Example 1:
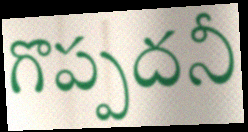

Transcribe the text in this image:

గొప్పదనీ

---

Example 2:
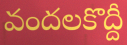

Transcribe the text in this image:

వందలకొద్దీ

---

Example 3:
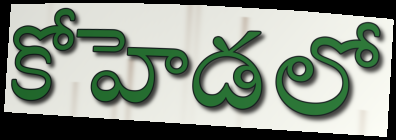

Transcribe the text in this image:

కోహెడలో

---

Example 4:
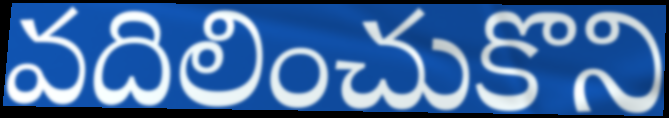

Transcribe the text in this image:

వదిలించుకొని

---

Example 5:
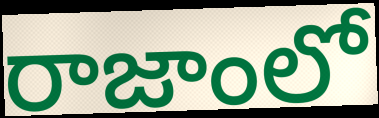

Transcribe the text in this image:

రాజాంలో